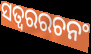
ସତ୍ୱରରଚନଂ